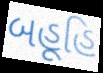
બહૂહિ